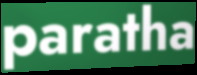
paratha